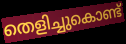
തെളിച്ചുകൊണ്ട്